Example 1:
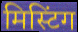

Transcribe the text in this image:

मिस्टिंग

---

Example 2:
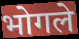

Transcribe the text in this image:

भोगले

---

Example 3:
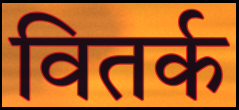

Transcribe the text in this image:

वितर्क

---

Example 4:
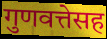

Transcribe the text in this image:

गुणवत्तेसह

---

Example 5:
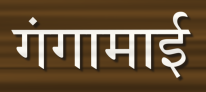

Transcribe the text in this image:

गंगामाई